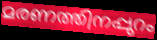
മരണത്തിനപ്പുറം